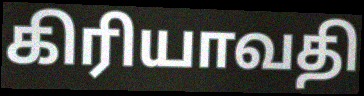
கிரியாவதி